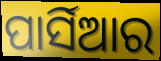
ପାର୍ସିଆର